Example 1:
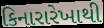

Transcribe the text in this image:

કિનારારેખાથી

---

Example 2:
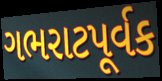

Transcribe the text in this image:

ગભરાટપૂર્વક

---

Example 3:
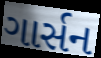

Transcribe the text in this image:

ગાર્સન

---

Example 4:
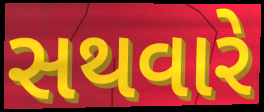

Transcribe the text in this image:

સથવારે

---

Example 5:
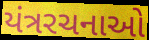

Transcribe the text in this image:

યંત્રરચનાઓ